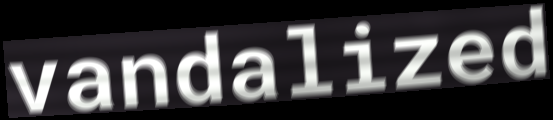
vandalized